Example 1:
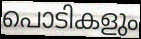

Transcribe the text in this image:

പൊടികളും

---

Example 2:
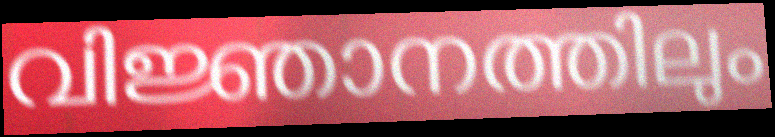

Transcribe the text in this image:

വിജ്ഞാനത്തിലും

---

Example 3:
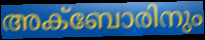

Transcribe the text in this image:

അക്ബോരിനും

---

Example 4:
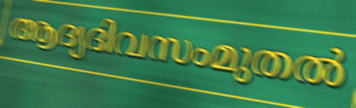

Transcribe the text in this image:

ആദ്യദിവസംമുതൽ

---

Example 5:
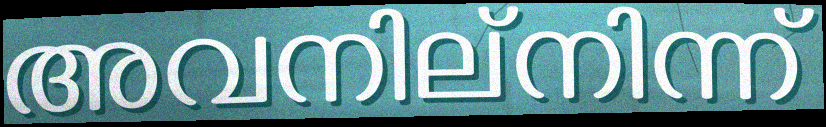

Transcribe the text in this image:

അവനില്നിന്ന്